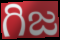
గిజ